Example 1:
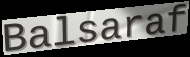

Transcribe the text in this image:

Balsaraf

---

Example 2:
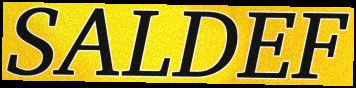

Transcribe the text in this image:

SALDEF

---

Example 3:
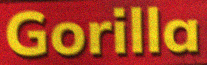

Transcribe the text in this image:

Gorilla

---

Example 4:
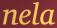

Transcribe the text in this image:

nela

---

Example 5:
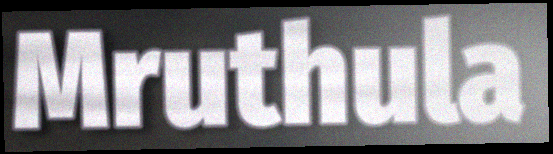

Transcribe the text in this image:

Mruthula